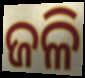
ଜଳି